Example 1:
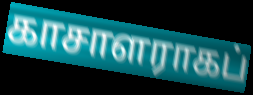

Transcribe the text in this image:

காசாளராகப்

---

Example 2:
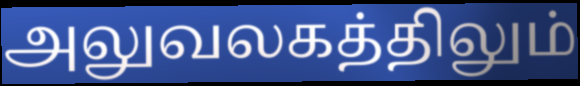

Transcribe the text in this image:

அலுவலகத்திலும்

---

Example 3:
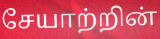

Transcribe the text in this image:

சேயாற்றின்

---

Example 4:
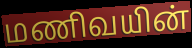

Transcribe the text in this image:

மணிவயின்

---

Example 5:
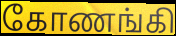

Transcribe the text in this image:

கோணங்கி